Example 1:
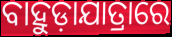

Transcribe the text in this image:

ବାହୁଡ଼ାଯାତ୍ରାରେ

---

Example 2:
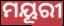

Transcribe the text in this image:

ମୟୂରୀ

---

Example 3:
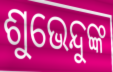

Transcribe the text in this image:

ଶୁଭେନ୍ଦୁଙ୍କ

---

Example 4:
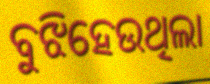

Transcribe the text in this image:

ବୁଝିହେଉଥିଲା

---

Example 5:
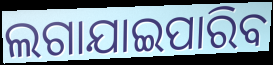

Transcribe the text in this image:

ଲଗାଯାଇପାରିବ